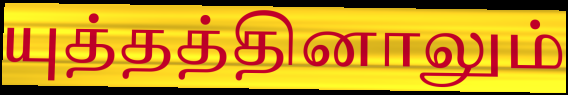
யுத்தத்தினாலும்